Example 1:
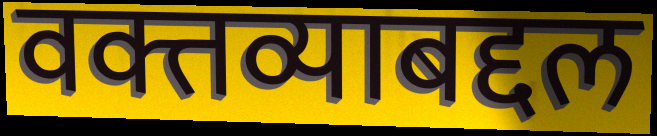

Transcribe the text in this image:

वक्तव्याबद्दल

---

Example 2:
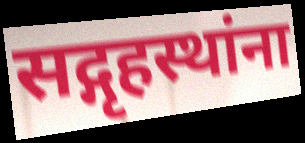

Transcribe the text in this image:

सद्गृहस्थांना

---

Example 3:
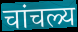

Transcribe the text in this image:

चांचल्य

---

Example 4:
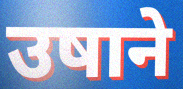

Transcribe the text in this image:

उषाने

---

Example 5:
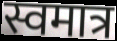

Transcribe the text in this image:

स्वमात्र